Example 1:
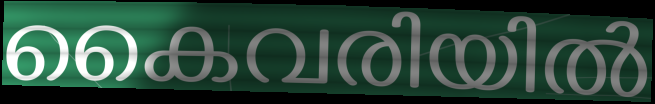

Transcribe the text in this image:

കൈവരിയിൽ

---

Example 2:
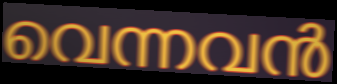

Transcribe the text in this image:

വെന്നവൻ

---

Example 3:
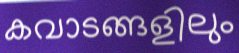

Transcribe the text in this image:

കവാടങ്ങളിലും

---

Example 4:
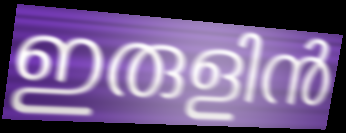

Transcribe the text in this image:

ഇരുളിൻ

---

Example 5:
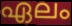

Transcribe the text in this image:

ഏലം